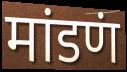
मांडणं